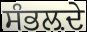
ਸੰਭਲ਼ਦੇ